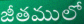
జీతములో